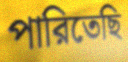
পারিতেছি